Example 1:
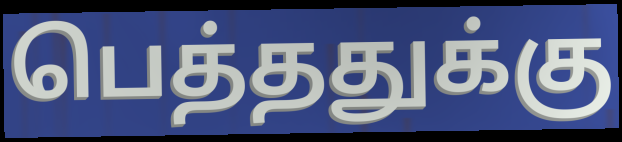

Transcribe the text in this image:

பெத்ததுக்கு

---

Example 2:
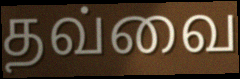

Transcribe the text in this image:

தவ்வை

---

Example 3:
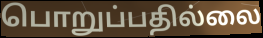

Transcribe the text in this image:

பொறுப்பதில்லை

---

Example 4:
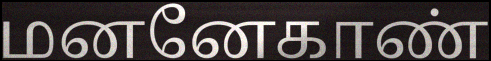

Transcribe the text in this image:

மனனேகாண்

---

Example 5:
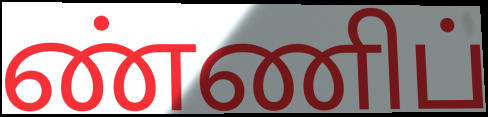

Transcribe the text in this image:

ண்ணிப்